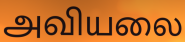
அவியலை